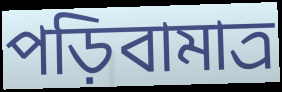
পড়িবামাত্র